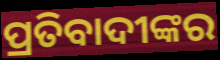
ପ୍ରତିବାଦୀଙ୍କର